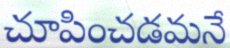
చూపించడమనే